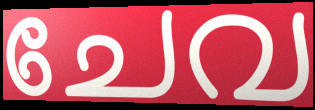
ചേവ